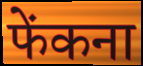
फेंकना